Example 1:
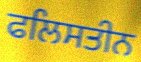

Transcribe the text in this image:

ਫਲਿਸਤੀਨ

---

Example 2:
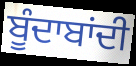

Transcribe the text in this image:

ਬੂੰਦਾਬਾਂਦੀ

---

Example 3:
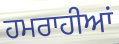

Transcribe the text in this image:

ਹਮਰਾਹੀਆਂ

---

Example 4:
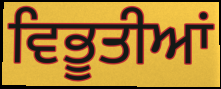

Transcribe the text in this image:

ਵਿਭੂਤੀਆਂ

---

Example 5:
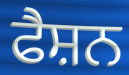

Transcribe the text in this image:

ਫੈਸ਼ਨ